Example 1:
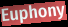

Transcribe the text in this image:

Euphony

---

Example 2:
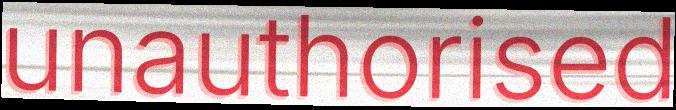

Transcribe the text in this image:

unauthorised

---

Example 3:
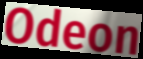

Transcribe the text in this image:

Odeon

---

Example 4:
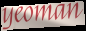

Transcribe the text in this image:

yeoman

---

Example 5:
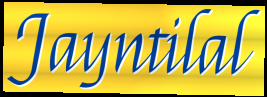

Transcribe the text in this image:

Jayntilal